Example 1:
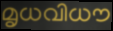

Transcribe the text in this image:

മൃധവിധൗ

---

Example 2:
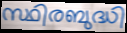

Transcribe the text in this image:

സ്ഥിരബുദ്ധി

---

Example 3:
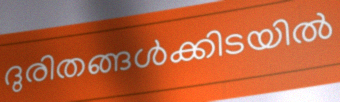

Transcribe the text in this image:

ദുരിതങ്ങൾക്കിടയിൽ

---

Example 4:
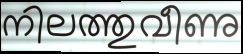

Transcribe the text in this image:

നിലത്തുവീണു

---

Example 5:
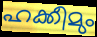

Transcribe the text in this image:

ഹക്കീമും